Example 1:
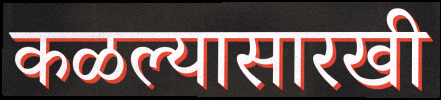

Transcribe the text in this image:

कळल्यासारखी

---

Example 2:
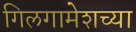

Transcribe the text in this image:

गिलगामेशच्या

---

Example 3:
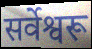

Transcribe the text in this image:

सर्वेश्वरू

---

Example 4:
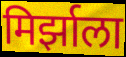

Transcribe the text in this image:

मिर्झाला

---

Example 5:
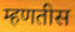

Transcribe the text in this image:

म्हणतीस